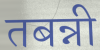
तबन्नी